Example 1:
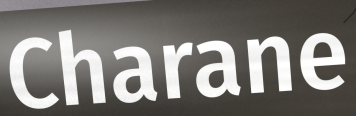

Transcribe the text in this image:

Charane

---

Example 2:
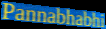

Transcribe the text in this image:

Pannabhabhi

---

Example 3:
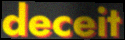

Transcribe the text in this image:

deceit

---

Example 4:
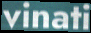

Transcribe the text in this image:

vinati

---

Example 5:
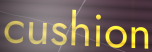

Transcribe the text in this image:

cushion